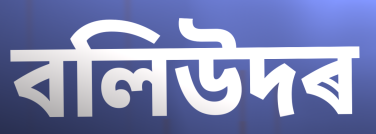
বলিউদৰ